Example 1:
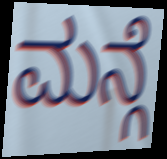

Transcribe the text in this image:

ಮನ್ಗೆ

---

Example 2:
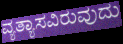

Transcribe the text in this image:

ವ್ಯತ್ಯಾಸವಿರುವುದು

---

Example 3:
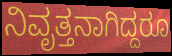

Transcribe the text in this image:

ನಿವೃತ್ತನಾಗಿದ್ದರೂ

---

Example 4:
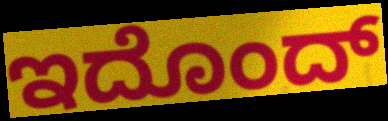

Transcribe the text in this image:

ಇದೊಂದ್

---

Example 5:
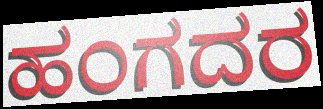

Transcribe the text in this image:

ಹಂಗದರ